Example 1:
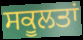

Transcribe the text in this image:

ਸਕੂਲਤਾਂ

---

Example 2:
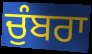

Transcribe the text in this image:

ਚੁੰਬਰਾ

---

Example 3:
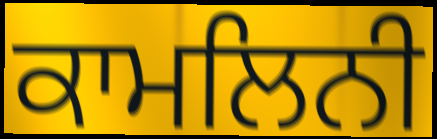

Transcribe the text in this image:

ਕਾਮਲਿਨੀ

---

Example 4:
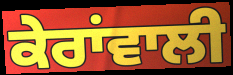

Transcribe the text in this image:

ਕੇਰਾਂਵਾਲੀ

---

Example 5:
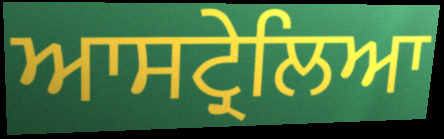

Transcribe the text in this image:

ਆਸਟ੍ਰੇਲਿਆ